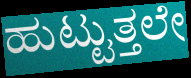
ಹುಟ್ಟುತ್ತಲೇ